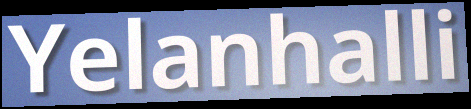
Yelanhalli